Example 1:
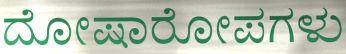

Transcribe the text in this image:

ದೋಷಾರೋಪಗಳು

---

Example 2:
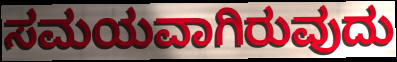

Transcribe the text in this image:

ಸಮಯವಾಗಿರುವುದು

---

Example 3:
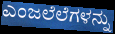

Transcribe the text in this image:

ಎಂಜಲೆಲೆಗಳನ್ನು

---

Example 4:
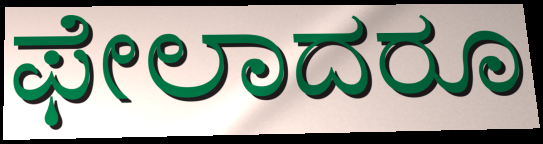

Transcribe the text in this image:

ಫೇಲಾದರೂ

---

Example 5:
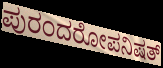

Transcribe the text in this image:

ಪುರಂದರೋಪನಿಷತ್